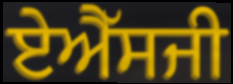
ਏਐੱਸਜੀ